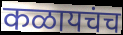
कळायचंच